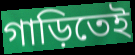
গাড়িতেই